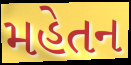
મહેતન